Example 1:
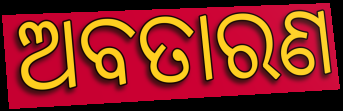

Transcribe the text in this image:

ଅବତାରଣ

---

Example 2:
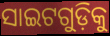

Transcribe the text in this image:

ସାଇଟଗୁଡ଼ିକୁ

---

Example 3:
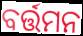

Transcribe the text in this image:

ବର୍ତ୍ତମନ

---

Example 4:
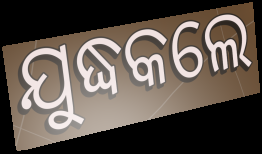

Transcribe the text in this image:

ଯୁଦ୍ଧକଲେ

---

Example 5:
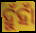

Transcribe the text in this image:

ହୁଁହାଁ